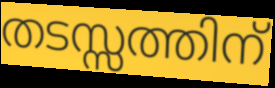
തടസ്സത്തിന്